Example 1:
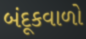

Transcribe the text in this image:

બંદૂકવાળો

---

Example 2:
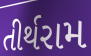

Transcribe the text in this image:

તીર્થરામ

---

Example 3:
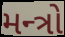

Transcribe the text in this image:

મન્ત્રો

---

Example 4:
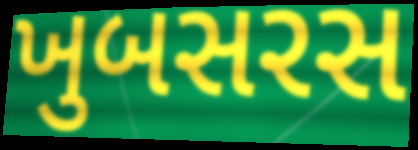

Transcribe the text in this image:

ખુબસરસ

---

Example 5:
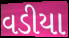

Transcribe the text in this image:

વડીયા